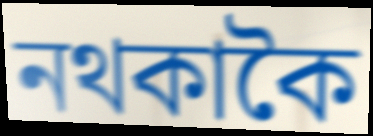
নথকাকৈ